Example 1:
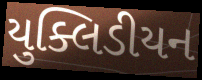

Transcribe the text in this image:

યુક્લિડીયન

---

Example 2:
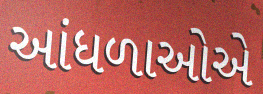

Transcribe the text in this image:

આંધળાઓએ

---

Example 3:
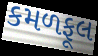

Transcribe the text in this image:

કમળફૂલ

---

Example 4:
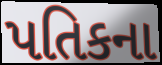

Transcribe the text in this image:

પતિકના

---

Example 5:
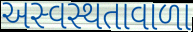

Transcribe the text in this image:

અસ્વસ્થતાવાળા